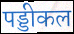
पड्डीकल